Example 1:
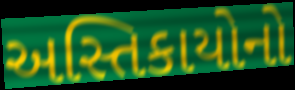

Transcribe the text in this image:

અસ્તિકાયોનો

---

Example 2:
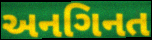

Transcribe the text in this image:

અનગિનત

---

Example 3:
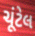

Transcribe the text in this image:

ચૂંટેલ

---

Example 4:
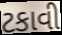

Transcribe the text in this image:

ટકાવી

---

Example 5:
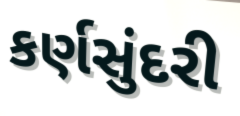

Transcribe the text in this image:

કર્ણસુંદરી